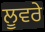
ਲੂਵਰੇ